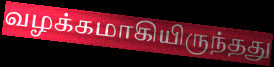
வழக்கமாகியிருந்தது